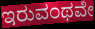
ಇರುವಂಥವೇ